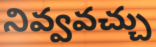
నివ్వవచ్చు